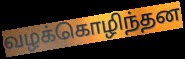
வழக்கொழிந்தன